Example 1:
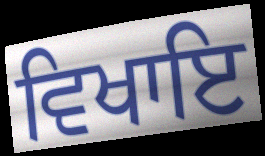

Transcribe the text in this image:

ਵਿਖਾਇ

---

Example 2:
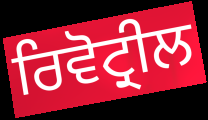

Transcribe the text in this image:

ਰਿਵੋਟ੍ਰੀਲ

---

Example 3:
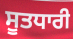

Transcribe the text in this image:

ਸੂਤਧਾਰੀ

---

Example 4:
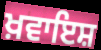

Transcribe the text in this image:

ਖ਼ਵਾਇਸ਼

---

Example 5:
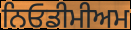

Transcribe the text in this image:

ਨਿਓਡੀਮੀਅਮ